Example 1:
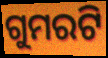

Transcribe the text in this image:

ଗୁମରଟି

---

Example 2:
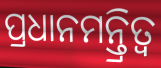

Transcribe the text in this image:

ପ୍ରଧାନମନ୍ତ୍ରିତ୍ଵ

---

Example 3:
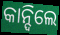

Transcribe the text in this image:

କାନ୍ଦିଲେ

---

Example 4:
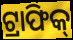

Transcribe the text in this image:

ଟ୍ରାଫିକ୍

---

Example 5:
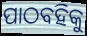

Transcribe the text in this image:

ପାଠବହିକୁ